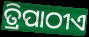
ତ୍ରିପାଠୀଏ